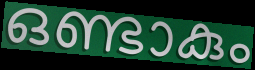
ഒണ്ടാകും